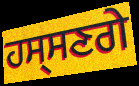
ਹਸ੍ਸਣਗੇ